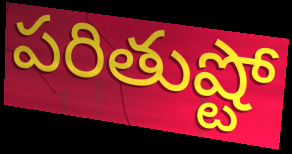
పరితుష్టో